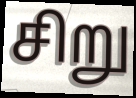
சிறு